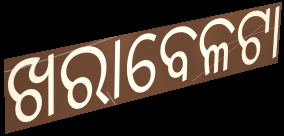
ଖରାବେଳଟା